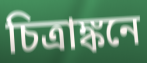
চিত্রাঙ্কনে